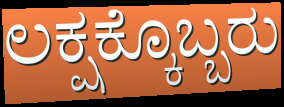
ಲಕ್ಷಕ್ಕೊಬ್ಬರು